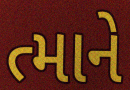
ત્માને